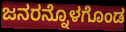
ಜನರನ್ನೊಳಗೊಂಡ